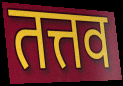
तत्तव